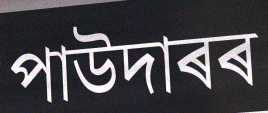
পাউদাৰৰ